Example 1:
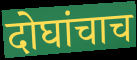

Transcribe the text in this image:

दोघांचाच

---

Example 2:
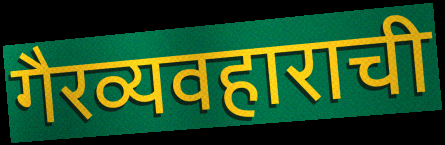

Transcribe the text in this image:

गैरव्यवहाराची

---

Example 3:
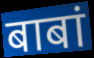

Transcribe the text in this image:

बाबां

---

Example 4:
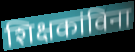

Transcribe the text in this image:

शिक्षकांविना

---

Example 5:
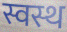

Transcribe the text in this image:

स्वस्थ